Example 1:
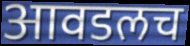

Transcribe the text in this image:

आवडलच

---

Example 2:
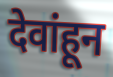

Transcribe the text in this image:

देवांहून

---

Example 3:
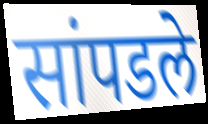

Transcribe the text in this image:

सांपडले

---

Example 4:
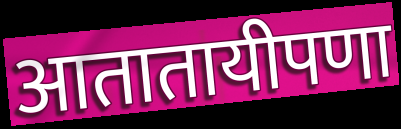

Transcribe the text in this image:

आतातायीपणा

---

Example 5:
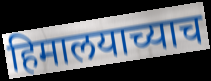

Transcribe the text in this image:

हिमालयाच्याच